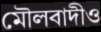
মৌলবাদীও